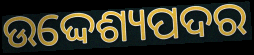
ଉଦ୍ଦେଶ୍ୟପଦର